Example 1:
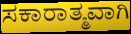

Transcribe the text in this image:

ಸಕಾರಾತ್ಮವಾಗಿ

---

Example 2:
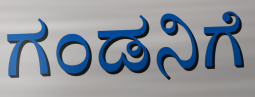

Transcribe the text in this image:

ಗಂಡನಿಗೆ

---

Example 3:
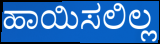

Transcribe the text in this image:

ಹಾಯಿಸಲಿಲ್ಲ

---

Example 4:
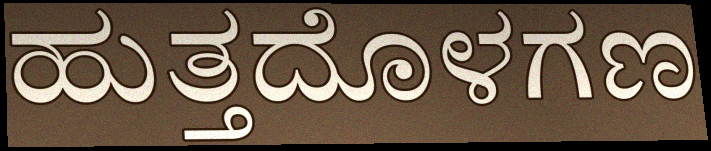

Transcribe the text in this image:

ಹುತ್ತದೊಳಗಣ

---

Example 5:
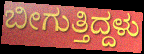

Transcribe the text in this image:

ಬೀಗುತ್ತಿದ್ದಳು